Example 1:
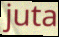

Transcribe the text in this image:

juta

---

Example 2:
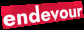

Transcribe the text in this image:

endevour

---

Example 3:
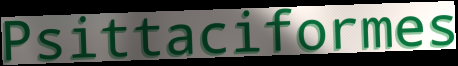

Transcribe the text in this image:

Psittaciformes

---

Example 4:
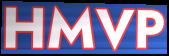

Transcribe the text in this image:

HMVP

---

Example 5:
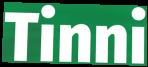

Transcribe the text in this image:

Tinni